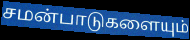
சமன்பாடுகளையும்